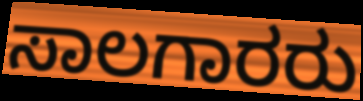
ಸಾಲಗಾರರು